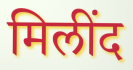
मिलींद